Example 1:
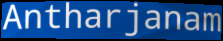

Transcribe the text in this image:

Antharjanam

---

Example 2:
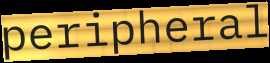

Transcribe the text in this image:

peripheral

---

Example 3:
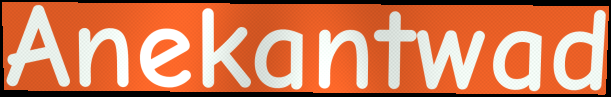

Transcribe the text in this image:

Anekantwad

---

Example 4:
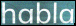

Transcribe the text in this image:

habla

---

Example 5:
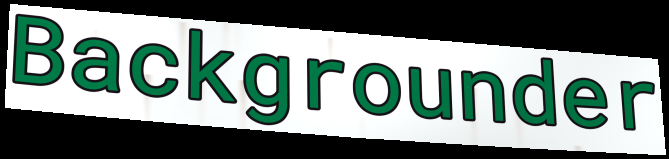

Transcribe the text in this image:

Backgrounder